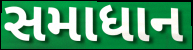
સમાધાન